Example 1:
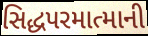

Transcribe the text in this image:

સિદ્ધપરમાત્માની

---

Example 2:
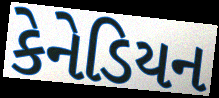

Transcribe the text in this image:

કેનેડિયન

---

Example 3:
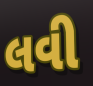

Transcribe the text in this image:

લવી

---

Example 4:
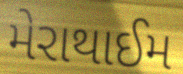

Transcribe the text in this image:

મેરાથાઈમ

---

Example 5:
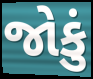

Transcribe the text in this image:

જોકું